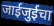
जाईजुईचा